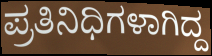
ಪ್ರತಿನಿಧಿಗಳಾಗಿದ್ದ